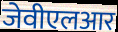
जेवीएलआर